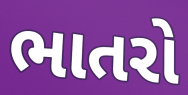
ભાતરો